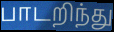
பாடறிந்து